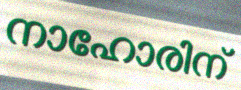
നാഹോരിന്